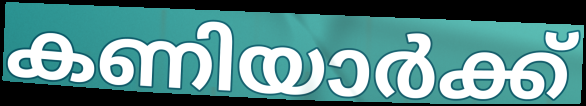
കണിയാർക്ക്